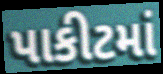
પાકીટમાં